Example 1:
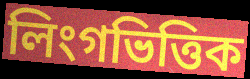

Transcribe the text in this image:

লিংগভিত্তিক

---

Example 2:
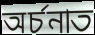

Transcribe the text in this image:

অৰ্চনাত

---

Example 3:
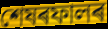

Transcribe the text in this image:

শেষৰফালৰ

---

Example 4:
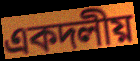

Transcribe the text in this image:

একদলীয়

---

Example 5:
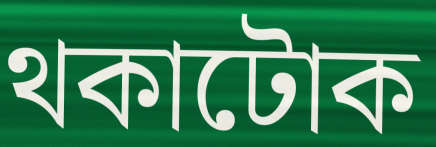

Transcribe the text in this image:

থকাটোক